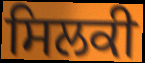
ਸਿਲਕੀ